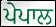
ਪੇਪਾਲ